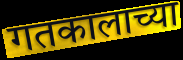
गतकालाच्या